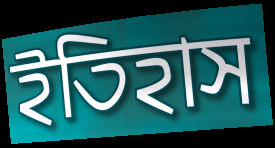
ইতিহাস